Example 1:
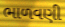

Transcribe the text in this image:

ભાળવણી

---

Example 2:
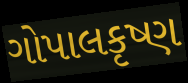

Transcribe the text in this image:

ગોપાલકૃષ્ણ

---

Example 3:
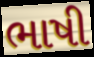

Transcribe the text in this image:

ભાષી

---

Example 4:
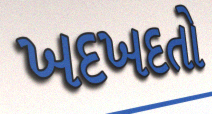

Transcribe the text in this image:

ખદખદતો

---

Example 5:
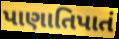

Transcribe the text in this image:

પાણાતિપાતં